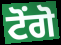
ਟੋਂਗੋ